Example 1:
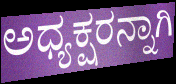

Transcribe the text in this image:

ಅಧ್ಯಕ್ಷರನ್ನಾಗಿ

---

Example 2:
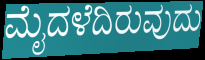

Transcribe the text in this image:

ಮೈದಳೆದಿರುವುದು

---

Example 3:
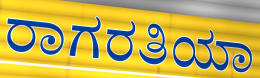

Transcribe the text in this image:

ರಾಗರತಿಯಾ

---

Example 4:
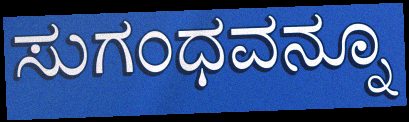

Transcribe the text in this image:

ಸುಗಂಧವನ್ನೂ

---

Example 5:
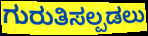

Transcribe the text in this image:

ಗುರುತಿಸಲ್ಪಡಲು